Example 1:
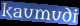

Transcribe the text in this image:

kaumudi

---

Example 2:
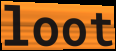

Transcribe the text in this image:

loot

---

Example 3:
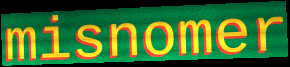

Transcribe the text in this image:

misnomer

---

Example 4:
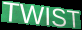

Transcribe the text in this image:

TWIST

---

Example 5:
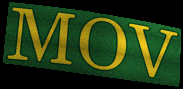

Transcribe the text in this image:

MOV